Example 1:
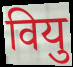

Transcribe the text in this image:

वियु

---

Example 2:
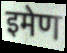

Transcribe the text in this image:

इमेण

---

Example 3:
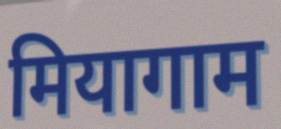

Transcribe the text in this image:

मियागाम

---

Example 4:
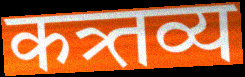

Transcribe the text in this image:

कत्र्तव्य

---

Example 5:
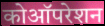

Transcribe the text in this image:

कोऑपरेशन